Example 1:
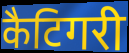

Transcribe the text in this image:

कैटिगरी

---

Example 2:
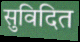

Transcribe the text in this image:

सुविदित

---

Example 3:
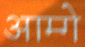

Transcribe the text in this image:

आम्गे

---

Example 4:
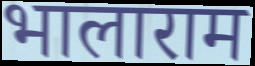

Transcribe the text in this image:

भालाराम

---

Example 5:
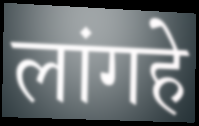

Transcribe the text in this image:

लांगहे